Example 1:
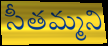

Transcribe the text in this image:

సీతమ్మని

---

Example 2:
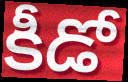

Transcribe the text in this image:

కీడో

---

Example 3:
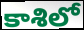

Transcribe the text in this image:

కాశిలో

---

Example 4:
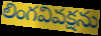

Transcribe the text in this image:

లింగవివక్షను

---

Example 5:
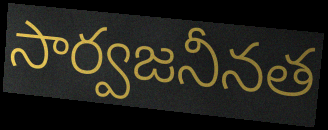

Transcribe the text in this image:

సార్వజనీనత